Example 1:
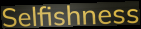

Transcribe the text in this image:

Selfishness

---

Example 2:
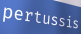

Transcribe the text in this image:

pertussis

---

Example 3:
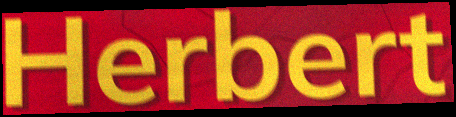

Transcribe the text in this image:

Herbert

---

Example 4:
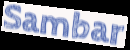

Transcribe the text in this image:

Sambar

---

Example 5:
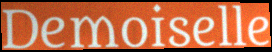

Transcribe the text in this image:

Demoiselle